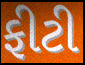
ફીટી